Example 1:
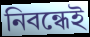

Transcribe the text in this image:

নিবন্ধেই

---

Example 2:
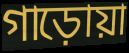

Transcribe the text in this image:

গাড়োয়া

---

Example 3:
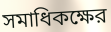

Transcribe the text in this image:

সমাধিকক্ষের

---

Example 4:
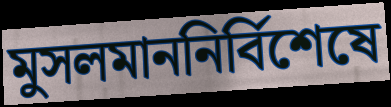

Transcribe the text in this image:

মুসলমাননির্বিশেষে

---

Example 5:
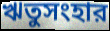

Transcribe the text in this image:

ঋতুসংহার